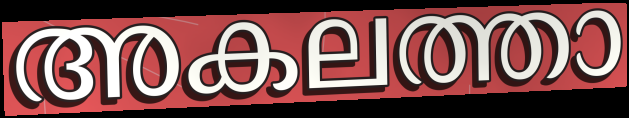
അകലത്താ